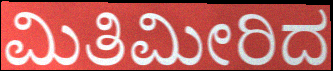
ಮಿತಿಮೀರಿದ